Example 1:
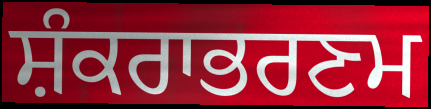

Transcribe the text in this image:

ਸ਼ੰਕਰਾਭਰਣਮ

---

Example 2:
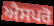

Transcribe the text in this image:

ਐਸਪਰੋ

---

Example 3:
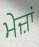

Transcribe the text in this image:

ਮੇਜ਼ਾਂ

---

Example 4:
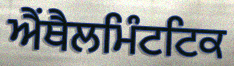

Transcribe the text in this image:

ਐਂਥੈਲਮਿੰਟਟਿਕ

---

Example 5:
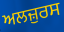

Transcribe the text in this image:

ਅਲਜ਼ੁਰਸ